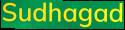
Sudhagad